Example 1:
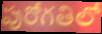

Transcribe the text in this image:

పురోగతిలో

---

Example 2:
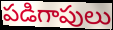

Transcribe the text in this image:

పడిగాపులు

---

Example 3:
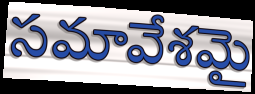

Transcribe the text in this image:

సమావేశమై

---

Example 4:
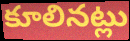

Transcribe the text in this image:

కూలినట్లు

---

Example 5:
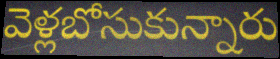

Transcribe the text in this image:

వెళ్లబోసుకున్నారు